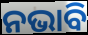
ନଭାବି